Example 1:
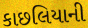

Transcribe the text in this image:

કાછલિયાની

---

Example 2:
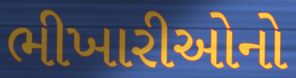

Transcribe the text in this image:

ભીખારીઓનો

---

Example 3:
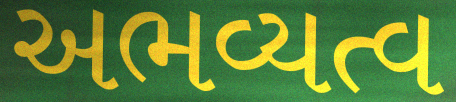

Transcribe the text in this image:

અભવ્યત્વ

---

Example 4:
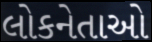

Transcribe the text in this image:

લોકનેતાઓ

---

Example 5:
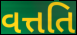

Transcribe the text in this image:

વત્તતિ